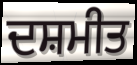
ਦਸ਼ਮੀਤ